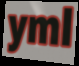
yml